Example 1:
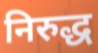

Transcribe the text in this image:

निरुद्ध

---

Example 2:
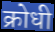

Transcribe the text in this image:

क्रोधी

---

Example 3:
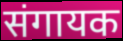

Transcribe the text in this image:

संगायक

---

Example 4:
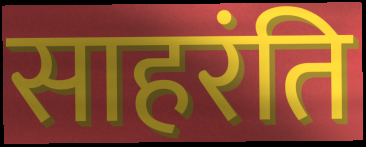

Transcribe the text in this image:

साहरंति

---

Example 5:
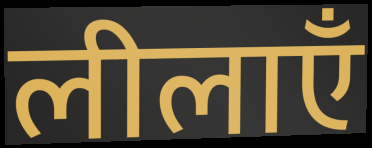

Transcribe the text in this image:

लीलाएँ